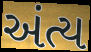
અંત્ય